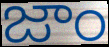
జాం